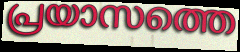
പ്രയാസത്തെ